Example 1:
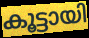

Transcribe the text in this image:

കൂട്ടായി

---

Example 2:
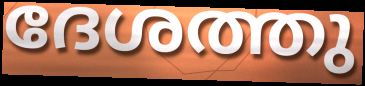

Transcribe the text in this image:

ദേശത്തു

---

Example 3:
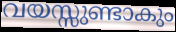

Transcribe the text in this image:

വയസ്സുണ്ടാകും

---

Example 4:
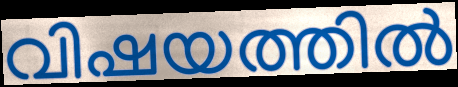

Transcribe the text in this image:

വിഷയത്തിൽ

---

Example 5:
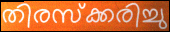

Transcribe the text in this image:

തിരസ്ക്കരിച്ചു